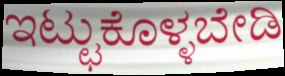
ಇಟ್ಟುಕೊಳ್ಳಬೇಡಿ